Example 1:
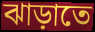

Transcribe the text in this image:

ঝাড়াতে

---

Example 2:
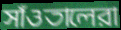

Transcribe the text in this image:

সাঁওতালেরা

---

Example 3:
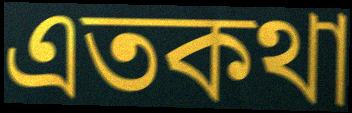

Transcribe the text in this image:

এতকথা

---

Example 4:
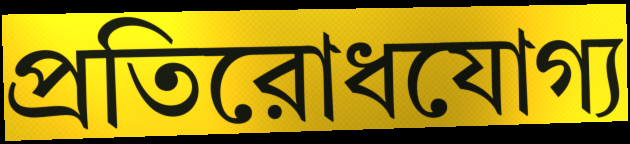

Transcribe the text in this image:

প্রতিরোধযোগ্য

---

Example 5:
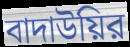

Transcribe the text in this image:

বাদাউয়ির